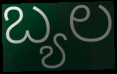
ಬ್ಯಲ